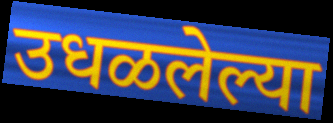
उधळलेल्या